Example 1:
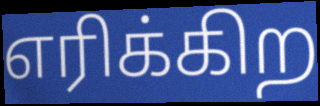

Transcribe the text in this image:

எரிக்கிற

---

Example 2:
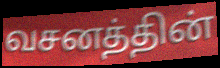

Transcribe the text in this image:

வசனத்தின்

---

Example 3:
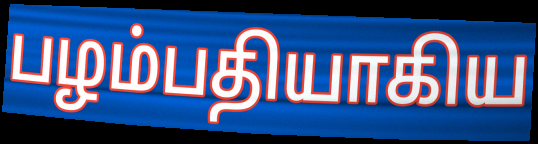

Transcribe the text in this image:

பழம்பதியாகிய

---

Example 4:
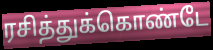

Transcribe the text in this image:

ரசித்துக்கொண்டே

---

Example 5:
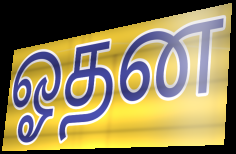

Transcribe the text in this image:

ஓதன